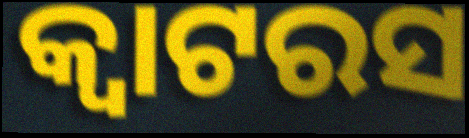
କ୍ୱାଟରସ